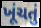
ખૂંચતું